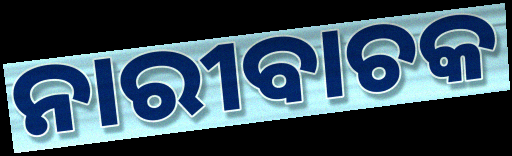
ନାରୀବାଚକ